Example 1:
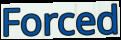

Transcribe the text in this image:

Forced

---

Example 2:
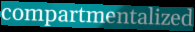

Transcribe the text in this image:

compartmentalized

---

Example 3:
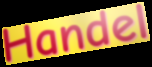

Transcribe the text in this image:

Handel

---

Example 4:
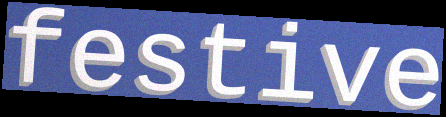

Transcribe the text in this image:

festive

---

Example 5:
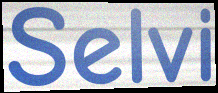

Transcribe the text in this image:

Selvi